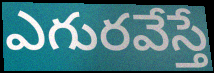
ఎగురవేస్తే